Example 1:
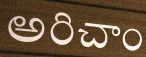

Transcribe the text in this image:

అరిచాం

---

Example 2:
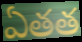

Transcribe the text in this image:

ఏతత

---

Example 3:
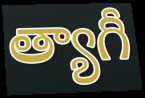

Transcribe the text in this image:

త్యాగీ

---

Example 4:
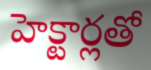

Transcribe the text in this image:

హెక్టార్లతో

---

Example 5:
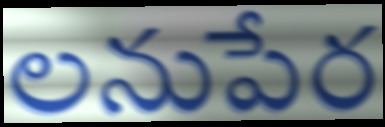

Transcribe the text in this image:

లనుపేర